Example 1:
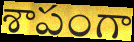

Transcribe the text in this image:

శాపంగా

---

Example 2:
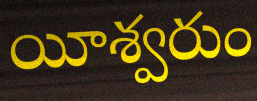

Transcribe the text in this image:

యీశ్వరుం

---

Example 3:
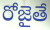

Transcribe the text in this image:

రోజైతే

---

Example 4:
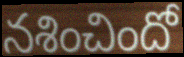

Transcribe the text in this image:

నశించిందో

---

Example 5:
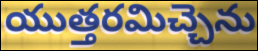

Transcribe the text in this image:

యుత్తరమిచ్చెను